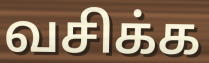
வசிக்க